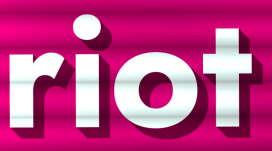
riot